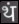
थं